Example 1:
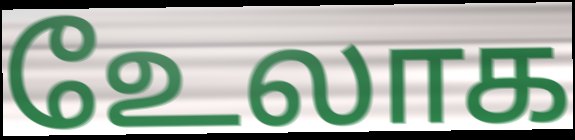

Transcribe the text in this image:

உேலாக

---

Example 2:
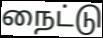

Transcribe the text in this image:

நைட்டு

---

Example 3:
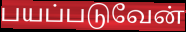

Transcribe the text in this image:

பயப்படுவேன்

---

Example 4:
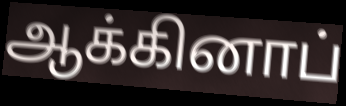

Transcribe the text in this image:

ஆக்கினாப்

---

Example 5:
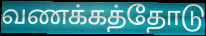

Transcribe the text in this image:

வணக்கத்தோடு